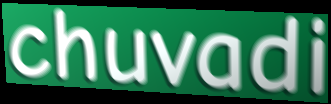
chuvadi